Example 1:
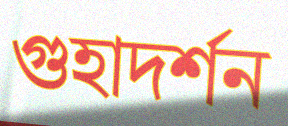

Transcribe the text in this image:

গুহাদর্শন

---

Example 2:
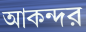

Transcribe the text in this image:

আকন্দর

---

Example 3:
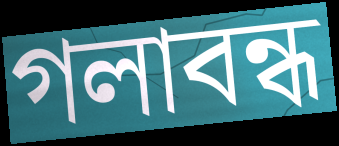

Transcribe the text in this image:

গলাবন্ধ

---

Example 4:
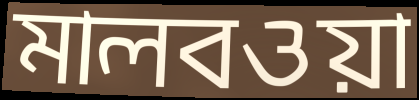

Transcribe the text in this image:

মালবওয়া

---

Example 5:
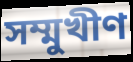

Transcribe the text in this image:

সম্মুখীণ